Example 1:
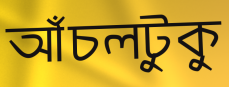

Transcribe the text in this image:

আঁচলটুকু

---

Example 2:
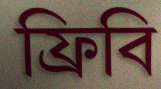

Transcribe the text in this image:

ফ্রিবি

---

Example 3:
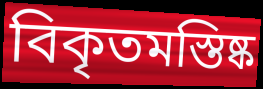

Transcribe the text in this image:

বিকৃতমস্তিষ্ক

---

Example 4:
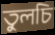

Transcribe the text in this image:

তুলচি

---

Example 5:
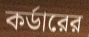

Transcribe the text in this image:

কর্ডারের